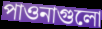
পাওনাগুলো